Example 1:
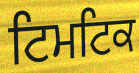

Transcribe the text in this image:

ਟਿਮਟਿਕ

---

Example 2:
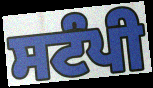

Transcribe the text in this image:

ਸਟੰਪੀ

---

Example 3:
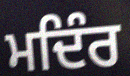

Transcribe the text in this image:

ਮਦਿੰਰ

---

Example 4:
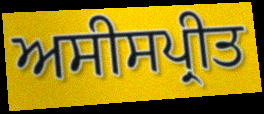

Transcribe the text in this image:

ਅਸੀਸਪ੍ਰੀਤ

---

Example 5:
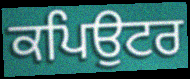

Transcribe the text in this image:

ਕਪਿਉਟਰ